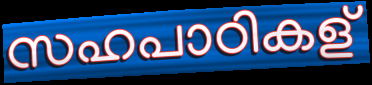
സഹപാഠികള്